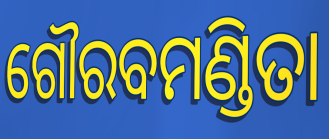
ଗୌରବମଣ୍ଡିତା